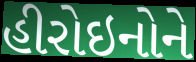
હીરોઇનોને